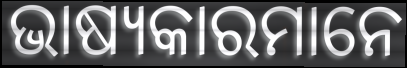
ଭାଷ୍ୟକାରମାନେ